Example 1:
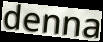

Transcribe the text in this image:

denna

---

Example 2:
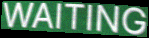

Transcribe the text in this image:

WAITING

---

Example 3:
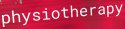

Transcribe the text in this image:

physiotherapy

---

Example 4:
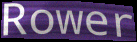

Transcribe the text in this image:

Rower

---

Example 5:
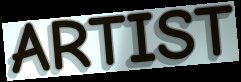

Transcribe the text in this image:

ARTIST